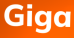
Giga